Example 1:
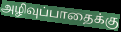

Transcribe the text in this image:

அழிவுப்பாதைக்கு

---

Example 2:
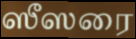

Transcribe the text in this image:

ஸீஸரை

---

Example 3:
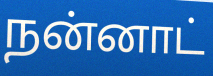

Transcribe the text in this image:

நன்னாட்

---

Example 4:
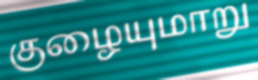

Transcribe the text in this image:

குழையுமாறு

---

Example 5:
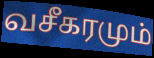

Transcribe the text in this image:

வசீகரமும்